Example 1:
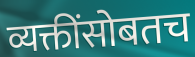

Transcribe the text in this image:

व्यक्तींसोबतच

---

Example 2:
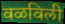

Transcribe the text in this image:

वळविली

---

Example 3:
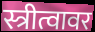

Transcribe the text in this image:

स्त्रीत्वावर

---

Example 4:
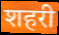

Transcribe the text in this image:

शहरी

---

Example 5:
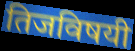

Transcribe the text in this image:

तिजविषयी